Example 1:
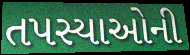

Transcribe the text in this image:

તપસ્યાઓની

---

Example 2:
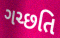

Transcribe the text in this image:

ગચ્છતિ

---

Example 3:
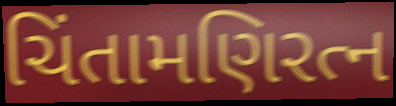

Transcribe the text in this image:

ચિંતામણિરત્ન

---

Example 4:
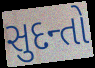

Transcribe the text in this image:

સુદન્તો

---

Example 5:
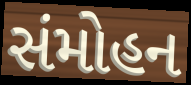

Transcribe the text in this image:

સંમોહન